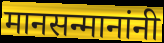
मानसन्मानांनी